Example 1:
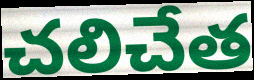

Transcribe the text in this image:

చలిచేత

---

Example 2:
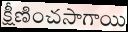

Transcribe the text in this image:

క్షీణించసాగాయి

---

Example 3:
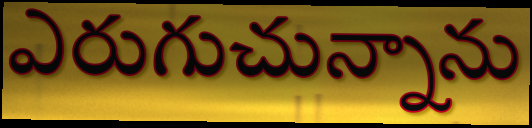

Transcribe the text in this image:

ఎరుగుచున్నాను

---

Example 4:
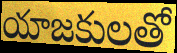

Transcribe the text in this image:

యాజకులతో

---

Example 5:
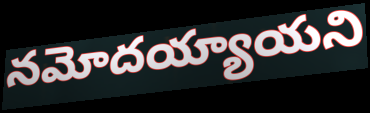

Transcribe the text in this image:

నమోదయ్యాయని